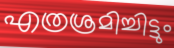
എത്രശ്രമിച്ചിട്ടും